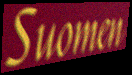
Suomen